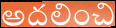
అదలించి